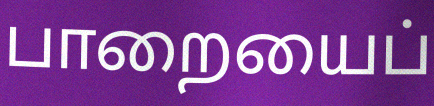
பாறையைப்